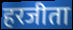
हरजीता